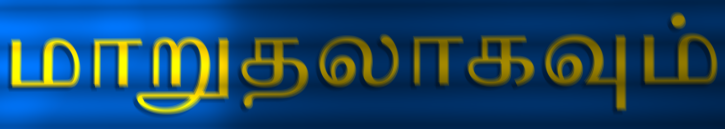
மாறுதலாகவும்